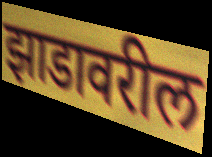
झाडावरील